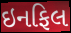
ઇનફિલ